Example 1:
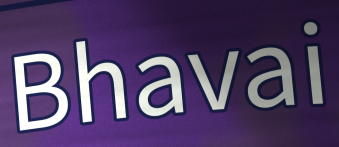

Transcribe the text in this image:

Bhavai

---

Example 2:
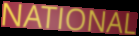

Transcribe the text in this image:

NATIONAL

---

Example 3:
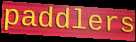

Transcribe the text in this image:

paddlers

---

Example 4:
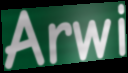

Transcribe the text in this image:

Arwi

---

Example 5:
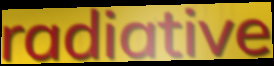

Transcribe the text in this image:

radiative